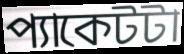
প্যাকেটটা